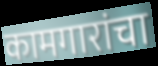
कामगारांचा